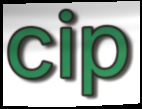
cip